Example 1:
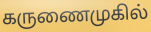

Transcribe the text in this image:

கருணைமுகில்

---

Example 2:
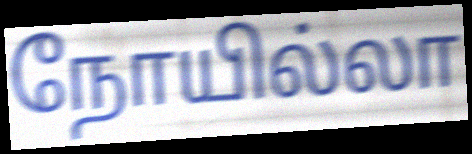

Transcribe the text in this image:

நோயில்லா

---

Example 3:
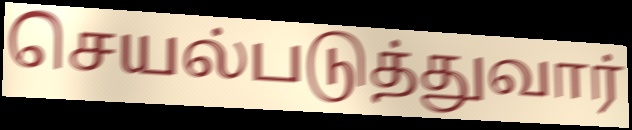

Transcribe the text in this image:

செயல்படுத்துவார்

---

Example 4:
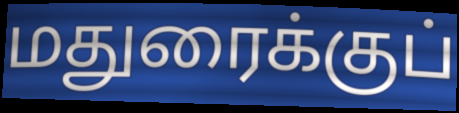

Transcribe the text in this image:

மதுரைக்குப்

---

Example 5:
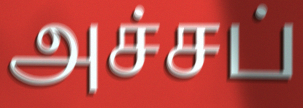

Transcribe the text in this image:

அச்சப்